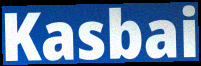
Kasbai